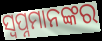
ସ୍ବପ୍ନମାନଙ୍କର